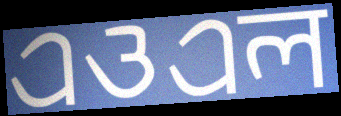
এওএল